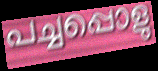
പച്ചപ്പൊളു